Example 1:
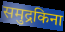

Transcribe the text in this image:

समुद्रकिना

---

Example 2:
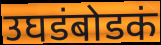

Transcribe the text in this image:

उघडंबोडकं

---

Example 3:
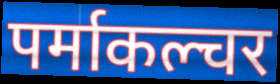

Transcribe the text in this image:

पर्माकल्चर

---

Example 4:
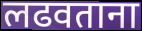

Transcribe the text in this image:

लढवताना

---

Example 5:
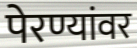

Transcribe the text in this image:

पेरण्यांवर